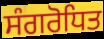
ਸੰਗਰੋਧਿਤ